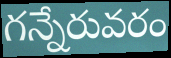
గన్నేరువరం